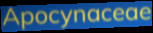
Apocynaceae